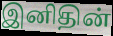
இனிதின்